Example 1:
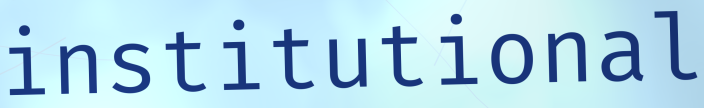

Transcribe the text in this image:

institutional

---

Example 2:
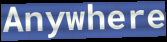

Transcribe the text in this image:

Anywhere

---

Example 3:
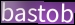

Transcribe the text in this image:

bastob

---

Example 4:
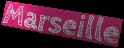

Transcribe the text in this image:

Marseille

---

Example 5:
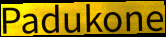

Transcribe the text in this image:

Padukone